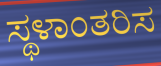
ಸ್ಥಳಾಂತರಿಸ